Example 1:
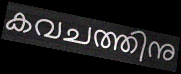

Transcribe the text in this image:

കവചത്തിനു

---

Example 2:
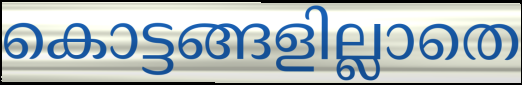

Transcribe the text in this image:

കൊട്ടങ്ങളില്ലാതെ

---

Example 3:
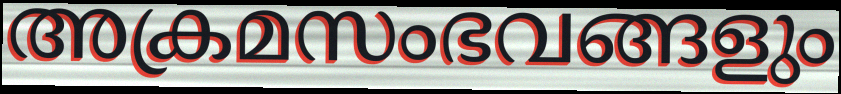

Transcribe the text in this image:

അക്രമസംഭവങ്ങളും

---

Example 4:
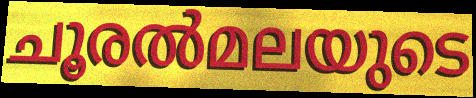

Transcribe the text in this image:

ചൂരൽമലയുടെ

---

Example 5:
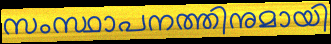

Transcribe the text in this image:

സംസ്ഥാപനത്തിനുമായി